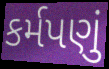
કર્મપણું